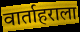
वार्ताहराला